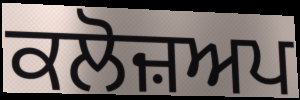
ਕਲੋਜ਼ਅਪ